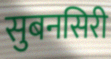
सुबनसिरी